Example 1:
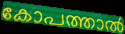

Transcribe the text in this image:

കോപത്താൽ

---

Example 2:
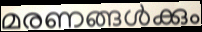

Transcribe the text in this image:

മരണങ്ങൾക്കും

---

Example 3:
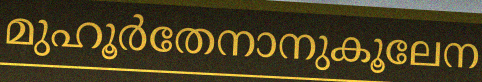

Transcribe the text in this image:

മുഹൂർതേനാനുകൂലേന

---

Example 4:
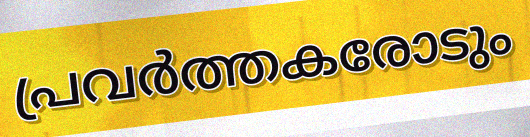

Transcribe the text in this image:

പ്രവർത്തകരോടും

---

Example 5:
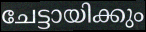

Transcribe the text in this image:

ചേട്ടായിക്കും